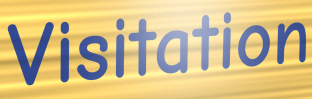
Visitation